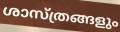
ശാസ്ത്രങ്ങളും